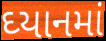
ઘ્યાનમાં